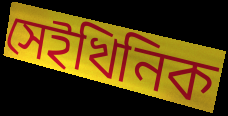
সেইখিনিক